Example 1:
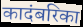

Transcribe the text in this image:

कादंबरिका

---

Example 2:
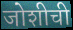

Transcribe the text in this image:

जोशीची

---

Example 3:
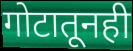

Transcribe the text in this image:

गोटातूनही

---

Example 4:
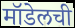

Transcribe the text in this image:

मॉडेलची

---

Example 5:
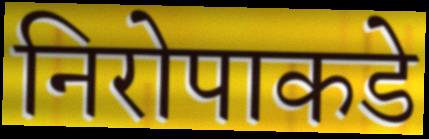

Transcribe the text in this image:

निरोपाकडे